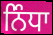
ਨਿੰਧਾ